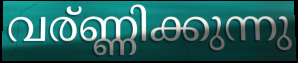
വര്ണ്ണിക്കുന്നു